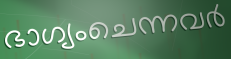
ഭാഗ്യംചെന്നവർ